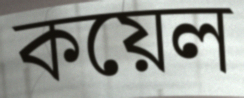
কয়েল